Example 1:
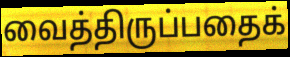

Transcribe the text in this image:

வைத்திருப்பதைக்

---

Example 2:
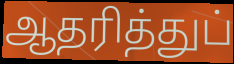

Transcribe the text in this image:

ஆதரித்துப்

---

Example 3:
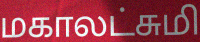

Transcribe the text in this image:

மகாலட்சுமி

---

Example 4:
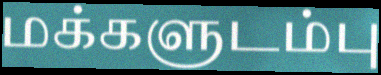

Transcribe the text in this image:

மக்களுடம்பு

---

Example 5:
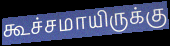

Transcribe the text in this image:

கூச்சமாயிருக்கு